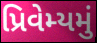
પ્રિવેમ્યમું